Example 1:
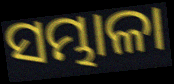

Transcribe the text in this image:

ସମ୍ଭାଳା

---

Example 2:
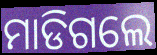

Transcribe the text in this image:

ମାଡିଗଲେ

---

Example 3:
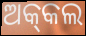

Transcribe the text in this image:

ଅକ୍‍କଲ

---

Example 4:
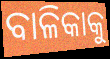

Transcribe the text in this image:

ବାଳିକାକୁ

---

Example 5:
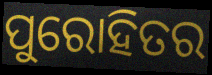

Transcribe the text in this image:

ପୁରୋହିତର